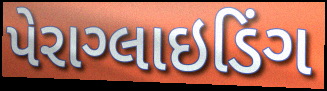
પેરાગ્લાઇડિંગ